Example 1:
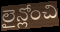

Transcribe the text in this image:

లైన్లోంచి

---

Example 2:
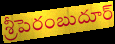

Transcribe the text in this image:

శ్రీపెరంబుదూర్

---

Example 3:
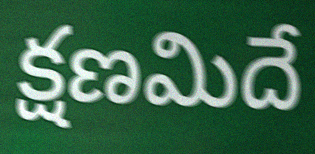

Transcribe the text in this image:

క్షణమిదే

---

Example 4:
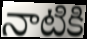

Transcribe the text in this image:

నాటికి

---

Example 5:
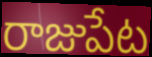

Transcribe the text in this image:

రాజుపేట